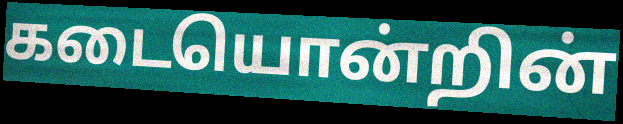
கடையொன்றின்